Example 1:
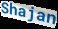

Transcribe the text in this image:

Shajan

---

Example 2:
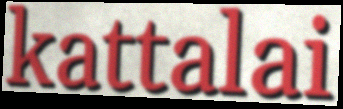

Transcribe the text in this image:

kattalai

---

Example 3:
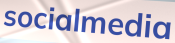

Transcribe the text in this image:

socialmedia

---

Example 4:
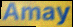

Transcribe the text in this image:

Amay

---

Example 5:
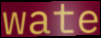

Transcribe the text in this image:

wate